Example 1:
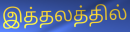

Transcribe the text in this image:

இத்தலத்தில்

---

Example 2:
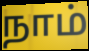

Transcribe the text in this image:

நாம்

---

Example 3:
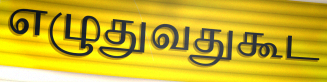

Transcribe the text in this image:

எழுதுவதுகூட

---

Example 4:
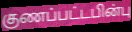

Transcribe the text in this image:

குணப்பட்டபின்பு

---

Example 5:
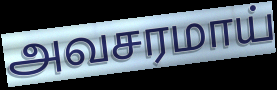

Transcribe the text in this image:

அவசரமாய்